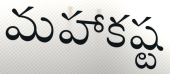
మహాకష్ట